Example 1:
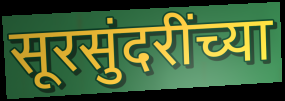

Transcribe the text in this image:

सूरसुंदरींच्या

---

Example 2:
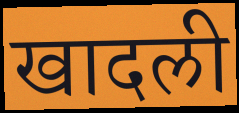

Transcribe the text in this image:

खादली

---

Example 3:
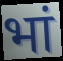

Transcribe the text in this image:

भां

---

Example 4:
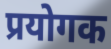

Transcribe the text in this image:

प्रयोगक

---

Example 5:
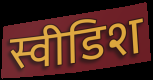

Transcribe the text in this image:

स्वीडिश